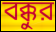
বক্কুর